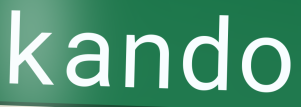
kando